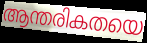
ആന്തരികതയെ